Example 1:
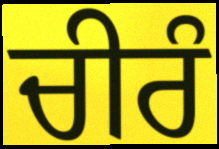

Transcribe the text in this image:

ਚੀਰੰ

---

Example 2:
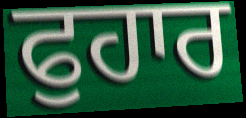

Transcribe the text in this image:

ਫੁਹਾਰ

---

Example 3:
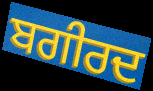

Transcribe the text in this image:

ਬਗੀਰਦ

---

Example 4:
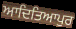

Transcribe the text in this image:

ਆਦਿਤਿਆਪੁਰ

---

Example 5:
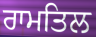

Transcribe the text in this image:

ਰਾਮਤਿਲ